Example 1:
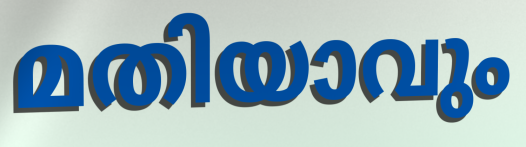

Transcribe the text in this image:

മതിയാവും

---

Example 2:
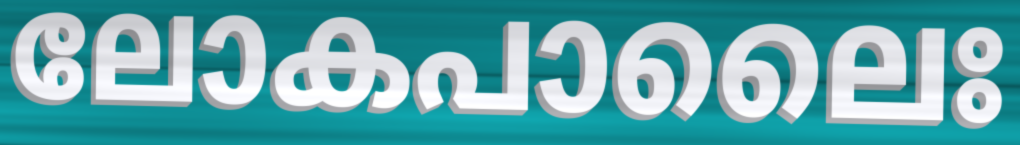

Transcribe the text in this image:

ലോകപാലൈഃ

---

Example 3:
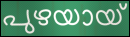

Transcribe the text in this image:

പുഴയായ്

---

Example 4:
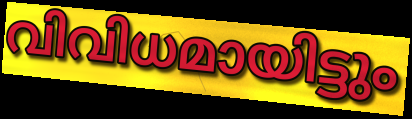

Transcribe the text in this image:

വിവിധമായിട്ടും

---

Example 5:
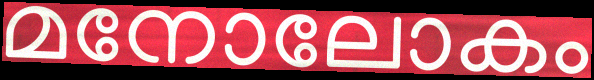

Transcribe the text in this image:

മനോലോകം